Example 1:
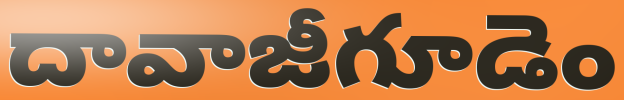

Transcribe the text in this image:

దావాజీగూడెం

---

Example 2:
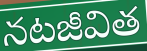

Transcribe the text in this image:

నటజీవిత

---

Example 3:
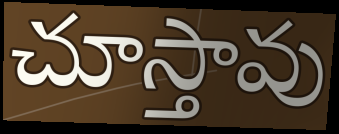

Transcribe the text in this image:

చూస్తావు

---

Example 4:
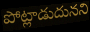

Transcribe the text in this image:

పోట్లాడుదునని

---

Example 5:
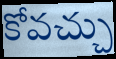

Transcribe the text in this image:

కోవచ్చు